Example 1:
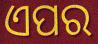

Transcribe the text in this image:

ଏପର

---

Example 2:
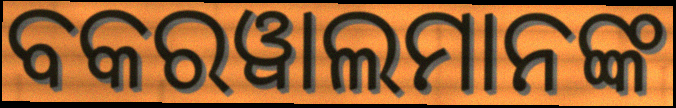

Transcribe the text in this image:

ବକରୱାଲମାନଙ୍କ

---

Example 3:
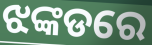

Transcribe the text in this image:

ଝଙ୍କଡରେ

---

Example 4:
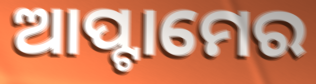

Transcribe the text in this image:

ଆପ୍ଟାମେର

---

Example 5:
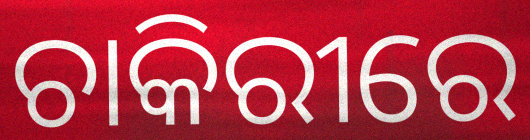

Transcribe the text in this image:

ଚାକିରୀରେ